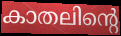
കാതലിന്റെ